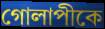
গোলাপীকে